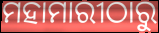
ମହାମାରୀଠାରୁ